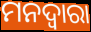
ମନଦ୍ଵାରା